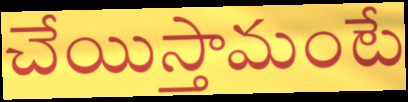
చేయిస్తామంటే